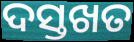
ଦସ୍ତଖତ